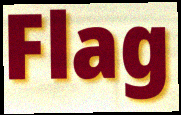
Flag